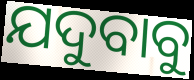
ଯଦୁବାବୁ